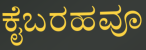
ಕೈಬರಹವೂ